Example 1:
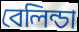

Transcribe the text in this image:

বেলিন্ডা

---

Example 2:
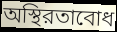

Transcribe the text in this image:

অস্থিরতাবোধ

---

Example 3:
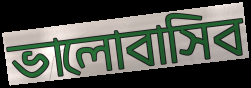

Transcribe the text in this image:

ভালোবাসিব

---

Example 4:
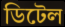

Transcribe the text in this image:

ডিটেল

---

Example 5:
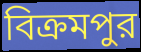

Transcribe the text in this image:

বিক্রমপুর